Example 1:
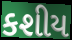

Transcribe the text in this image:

કશીય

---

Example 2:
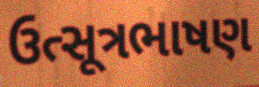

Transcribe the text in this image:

ઉત્સૂત્રભાષણ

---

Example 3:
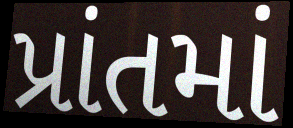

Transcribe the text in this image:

પ્રાંતમાં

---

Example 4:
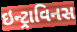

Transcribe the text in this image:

ઇન્ટ્રાવિનસ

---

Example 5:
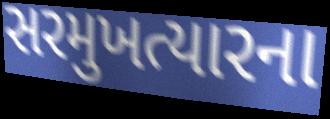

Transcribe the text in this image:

સરમુખત્યારના